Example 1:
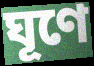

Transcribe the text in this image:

ঘূণে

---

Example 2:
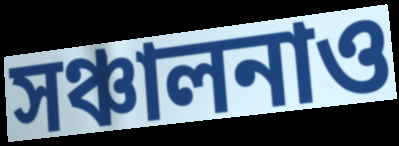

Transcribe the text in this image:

সঞ্চালনাও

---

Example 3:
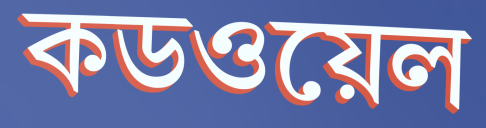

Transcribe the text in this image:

কডওয়েল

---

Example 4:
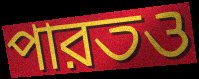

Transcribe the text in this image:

পারতও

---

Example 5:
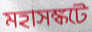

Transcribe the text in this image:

মহাসঙ্কটে